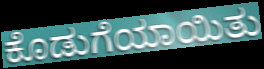
ಕೊಡುಗೆಯಾಯಿತು